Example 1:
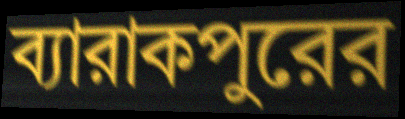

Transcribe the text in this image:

ব্যারাকপুরের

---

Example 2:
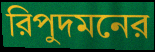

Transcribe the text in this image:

রিপুদমনের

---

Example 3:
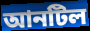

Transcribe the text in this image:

আনটিল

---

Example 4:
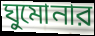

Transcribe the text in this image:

ঘুমোনার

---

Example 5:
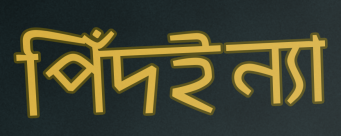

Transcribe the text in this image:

পিঁদইন্যা